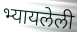
भ्यायलेली